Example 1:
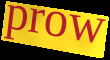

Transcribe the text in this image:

prow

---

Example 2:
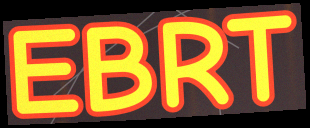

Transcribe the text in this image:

EBRT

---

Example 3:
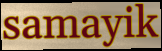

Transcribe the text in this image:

samayik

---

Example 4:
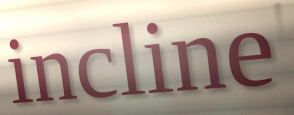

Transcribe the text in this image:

incline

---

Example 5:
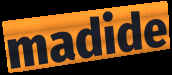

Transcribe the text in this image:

madide